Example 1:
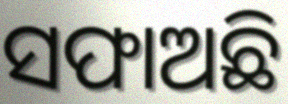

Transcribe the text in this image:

ସଫାଅଛି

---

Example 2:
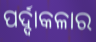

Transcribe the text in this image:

ପର୍ଦ୍ଦାକଳାର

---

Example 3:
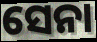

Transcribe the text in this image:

ସେନା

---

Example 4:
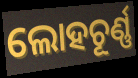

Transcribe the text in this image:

ଲୋହଚୂର୍ଣ୍ଣ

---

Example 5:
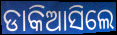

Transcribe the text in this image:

ଡାକିଆସିଲେ